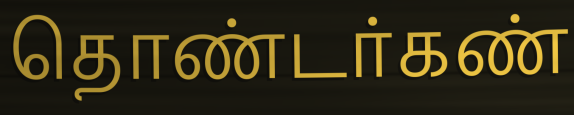
தொண்டர்கண்